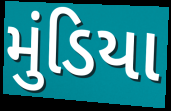
મુંડિયા